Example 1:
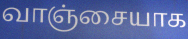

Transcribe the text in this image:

வாஞ்சையாக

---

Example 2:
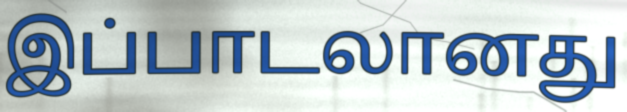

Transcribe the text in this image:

இப்பாடலானது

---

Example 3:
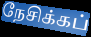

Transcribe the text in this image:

நேசிக்கப்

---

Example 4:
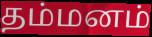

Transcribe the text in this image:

தம்மனம்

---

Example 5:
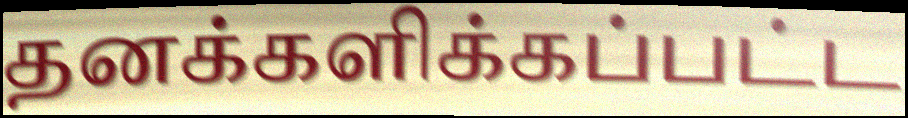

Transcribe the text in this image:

தனக்களிக்கப்பட்ட